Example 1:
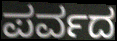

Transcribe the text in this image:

ಪರ್ವದ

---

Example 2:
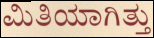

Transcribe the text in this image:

ಮಿತಿಯಾಗಿತ್ತು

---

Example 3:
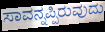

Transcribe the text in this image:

ಸಾವನ್ನಪ್ಪಿರುವುದು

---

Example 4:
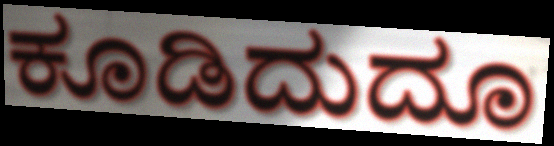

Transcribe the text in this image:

ಕೂಡಿದುದೂ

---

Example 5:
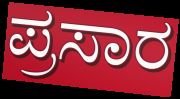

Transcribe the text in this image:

ಪ್ರಸಾರ